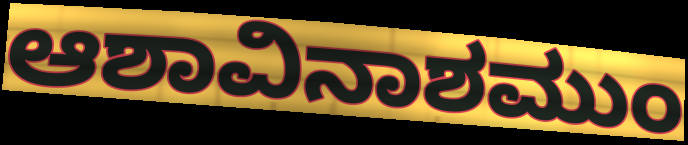
ಆಶಾವಿನಾಶಮುಂ